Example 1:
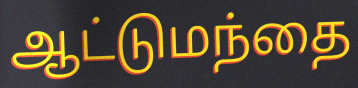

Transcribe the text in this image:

ஆட்டுமந்தை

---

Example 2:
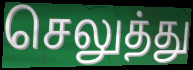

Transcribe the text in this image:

செலுத்து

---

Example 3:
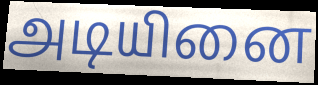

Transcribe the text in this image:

அடியினை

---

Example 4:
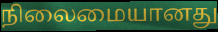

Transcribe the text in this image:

நிலைமையானது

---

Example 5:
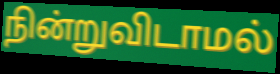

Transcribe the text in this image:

நின்றுவிடாமல்